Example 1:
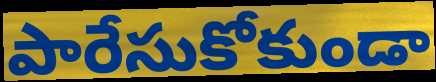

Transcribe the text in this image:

పారేసుకోకుండా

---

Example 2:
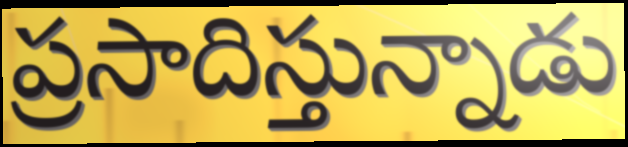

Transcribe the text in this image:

ప్రసాదిస్తున్నాడు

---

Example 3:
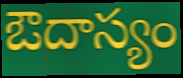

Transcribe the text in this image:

ఔదాస్యం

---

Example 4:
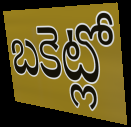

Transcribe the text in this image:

బకెట్లో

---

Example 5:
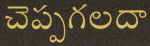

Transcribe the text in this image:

చెప్పగలదా